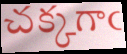
చక్కగాఁ